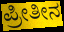
ಪ್ರೀತೀನ